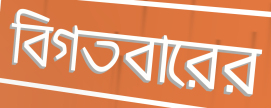
বিগতবারের